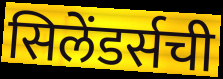
सिलेंडर्सची